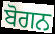
ਬੋਗਨ